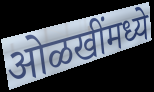
ओळखींमध्ये